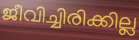
ജീവിച്ചിരിക്കില്ല